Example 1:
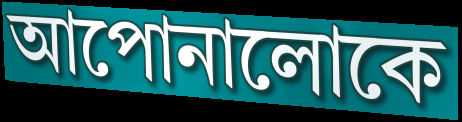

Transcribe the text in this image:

আপোনালোকে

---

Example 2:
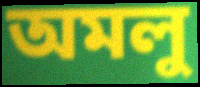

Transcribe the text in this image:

অমলু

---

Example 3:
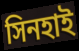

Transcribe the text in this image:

সিনহাই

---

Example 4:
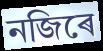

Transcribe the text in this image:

নজিৰে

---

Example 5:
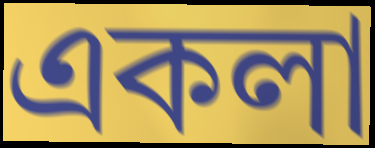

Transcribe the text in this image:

একলা